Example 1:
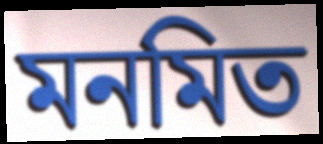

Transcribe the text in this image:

মনমিত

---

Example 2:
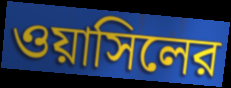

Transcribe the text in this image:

ওয়াসিলের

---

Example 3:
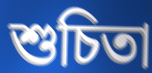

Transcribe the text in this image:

শুচিতা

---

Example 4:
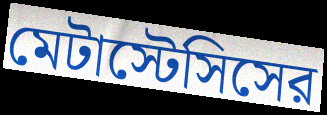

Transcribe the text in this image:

মেটাস্টেসিসের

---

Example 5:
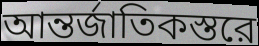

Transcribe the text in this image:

আন্তর্জাতিকস্তরে